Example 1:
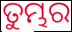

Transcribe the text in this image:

ତୁମ୍ଭର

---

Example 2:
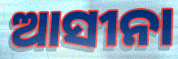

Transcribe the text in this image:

ଆସୀନା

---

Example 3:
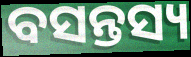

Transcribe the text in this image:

ବସନ୍ତସ୍ୟ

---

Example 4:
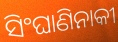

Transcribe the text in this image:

ସିଂଘାଣିନାକୀ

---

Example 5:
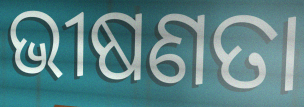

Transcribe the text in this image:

ଭୀଷଣତା